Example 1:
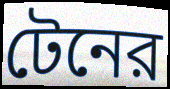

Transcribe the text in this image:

টেনের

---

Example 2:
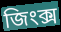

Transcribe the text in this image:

জিংক্স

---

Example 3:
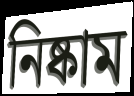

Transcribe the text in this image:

নিষ্কাম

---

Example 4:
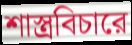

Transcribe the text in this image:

শাস্ত্রবিচারে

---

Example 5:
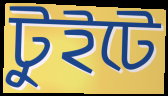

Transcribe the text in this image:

টুইটে